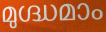
മുഗ്ദ്ധമാം